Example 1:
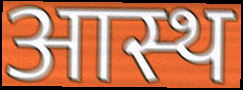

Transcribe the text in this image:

आस्थ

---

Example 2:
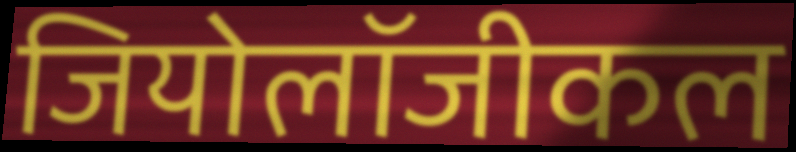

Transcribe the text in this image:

जियोलॉजीकल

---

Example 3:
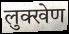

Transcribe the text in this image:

लुक्खेण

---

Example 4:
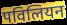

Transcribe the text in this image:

पविलियन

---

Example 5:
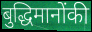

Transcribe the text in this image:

बुद्धिमानोंकी